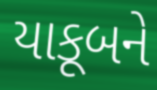
યાકૂબને